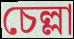
চেল্লা